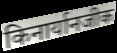
किनार्यानजीक